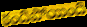
కందిపోయింది